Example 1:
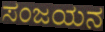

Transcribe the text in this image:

ಸಂಜಯನ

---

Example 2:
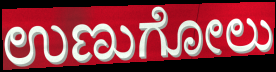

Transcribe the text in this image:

ಉಣುಗೋಲು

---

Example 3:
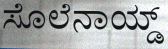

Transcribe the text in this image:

ಸೊಲೆನಾಯ್ಡ್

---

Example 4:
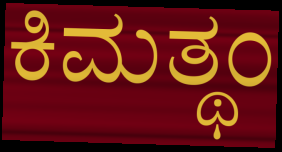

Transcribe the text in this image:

ಕಿಮತ್ಥಂ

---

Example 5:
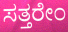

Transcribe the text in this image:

ಸತ್ತರೇಂ